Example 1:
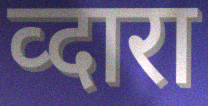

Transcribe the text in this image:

व्दारा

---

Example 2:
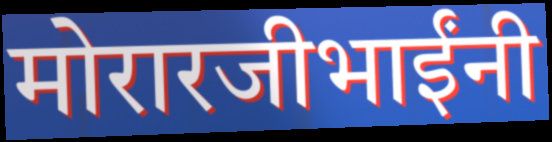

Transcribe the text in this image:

मोरारजीभाईंनी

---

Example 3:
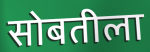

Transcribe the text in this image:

सोबतीला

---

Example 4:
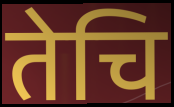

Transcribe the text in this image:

तेचि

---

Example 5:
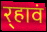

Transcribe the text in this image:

र्‍हावं